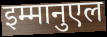
इम्मानुएल